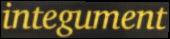
integument